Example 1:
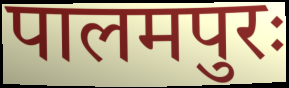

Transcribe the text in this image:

पालमपुरः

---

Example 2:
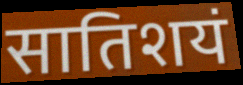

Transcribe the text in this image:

सातिशयं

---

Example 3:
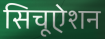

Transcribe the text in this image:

सिचूऐशन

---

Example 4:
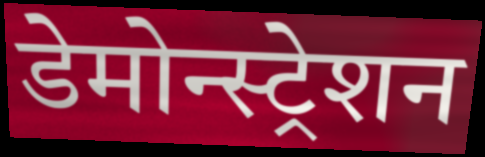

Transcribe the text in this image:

डेमोन्स्ट्रेशन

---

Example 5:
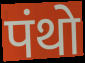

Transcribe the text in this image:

पंथो